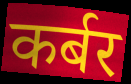
कर्बर